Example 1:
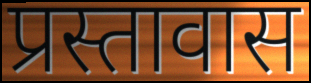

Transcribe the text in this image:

प्रस्तावास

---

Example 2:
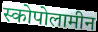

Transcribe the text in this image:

स्कोपोलामीन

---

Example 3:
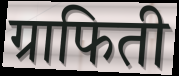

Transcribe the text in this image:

ग्राफिती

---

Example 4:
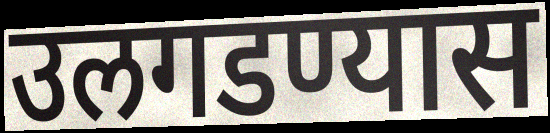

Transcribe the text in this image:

उलगडण्यास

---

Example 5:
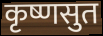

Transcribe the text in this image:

कृष्णसुत